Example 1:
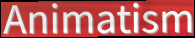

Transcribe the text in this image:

Animatism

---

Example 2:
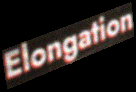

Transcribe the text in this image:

Elongation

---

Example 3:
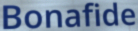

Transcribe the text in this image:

Bonafide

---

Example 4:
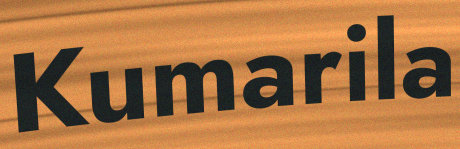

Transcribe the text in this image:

Kumarila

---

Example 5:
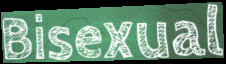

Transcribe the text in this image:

Bisexual